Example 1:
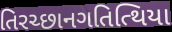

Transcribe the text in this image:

તિરચ્છાનગતિત્થિયા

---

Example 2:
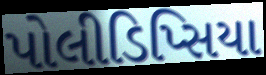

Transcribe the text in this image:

પોલીડિપ્સિયા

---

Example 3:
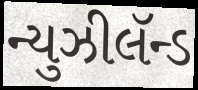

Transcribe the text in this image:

ન્યુઝીલૅન્ડ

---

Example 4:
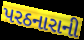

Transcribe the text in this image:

પરઠનારાની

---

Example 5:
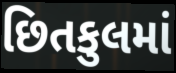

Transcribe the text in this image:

છિતકુલમાં